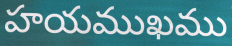
హయముఖము